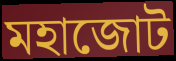
মহাজোট